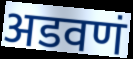
अडवणं